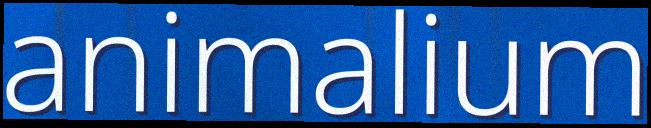
animalium